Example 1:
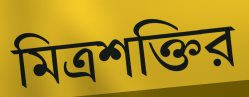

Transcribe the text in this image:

মিত্রশক্তির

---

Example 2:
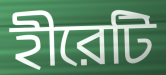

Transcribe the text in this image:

হীরেটি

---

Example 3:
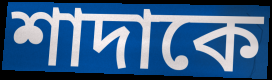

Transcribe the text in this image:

শাদাকে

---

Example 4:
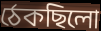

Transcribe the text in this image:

ঠেকছিলো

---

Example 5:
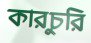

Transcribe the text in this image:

কারচুরি